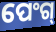
ପେଂଗ୍